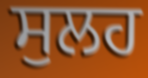
ਸੁਲਹ